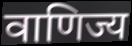
वाणिज्य